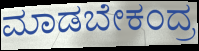
ಮಾಡಬೇಕಂದ್ರ